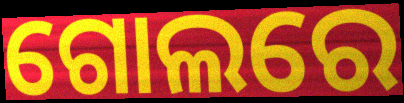
ଗୋଲରେ